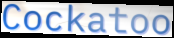
Cockatoo